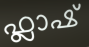
ഫ്ലാഷ്